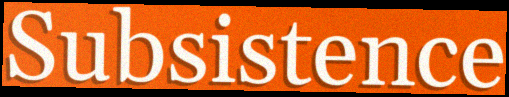
Subsistence